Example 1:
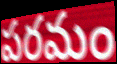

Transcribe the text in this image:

పరమం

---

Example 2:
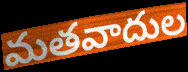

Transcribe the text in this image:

మతవాదుల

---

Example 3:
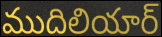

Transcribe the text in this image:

ముదిలియార్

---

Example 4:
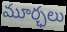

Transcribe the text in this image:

మూర్ఛలు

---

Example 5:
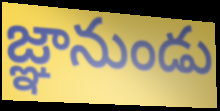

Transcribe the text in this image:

జ్ఞానుండు